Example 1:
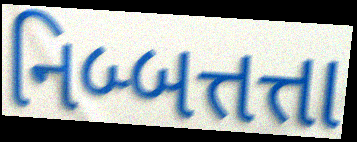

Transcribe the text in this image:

નિબ્બત્તત્તા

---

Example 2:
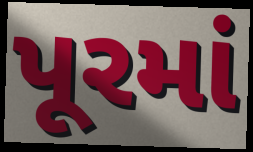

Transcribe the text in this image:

પૂરમાં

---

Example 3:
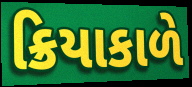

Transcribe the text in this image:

ક્રિયાકાળે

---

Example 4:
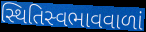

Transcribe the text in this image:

સ્થિતિસ્વભાવવાળાં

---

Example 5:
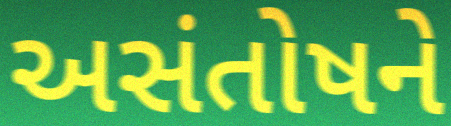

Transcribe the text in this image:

અસંતોષને